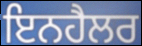
ਇਨਹੈਲਰ